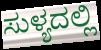
ಸುಳ್ಯದಲ್ಲಿ